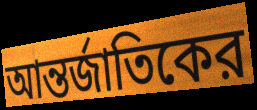
আন্তর্জাতিকের